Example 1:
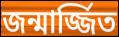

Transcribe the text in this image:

জন্মার্জ্জিত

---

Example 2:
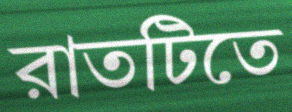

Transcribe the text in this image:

রাতটিতে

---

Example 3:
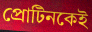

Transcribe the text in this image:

প্রোটিনকেই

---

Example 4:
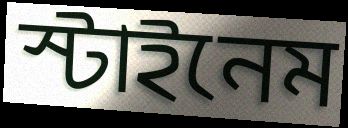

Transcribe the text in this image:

স্টাইনেম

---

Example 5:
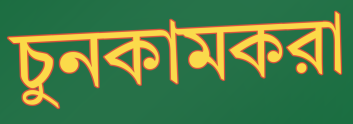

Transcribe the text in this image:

চুনকামকরা